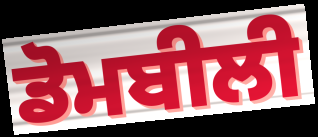
ਡੋਮਬੀਲੀ